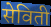
सेविती